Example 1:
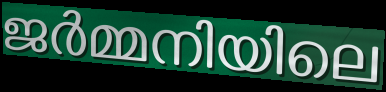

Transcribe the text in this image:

ജർമ്മനിയിലെ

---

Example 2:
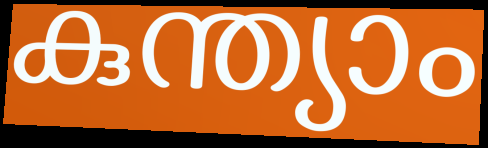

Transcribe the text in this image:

കുന്ത്യാം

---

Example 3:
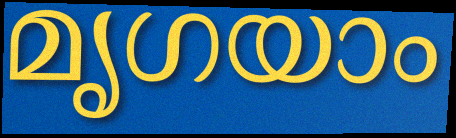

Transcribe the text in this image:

മൃഗയാം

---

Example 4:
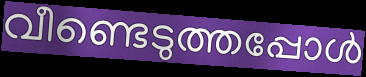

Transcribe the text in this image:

വീണ്ടെടുത്തപ്പോൾ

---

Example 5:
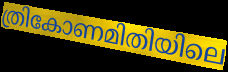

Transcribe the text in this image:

ത്രികോണമിതിയിലെ